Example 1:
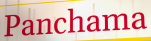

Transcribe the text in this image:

Panchama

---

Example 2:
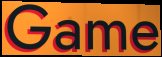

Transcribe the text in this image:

Game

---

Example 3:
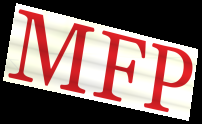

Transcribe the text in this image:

MFP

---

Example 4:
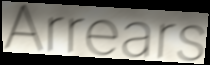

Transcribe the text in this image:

Arrears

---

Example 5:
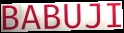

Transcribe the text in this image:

BABUJI